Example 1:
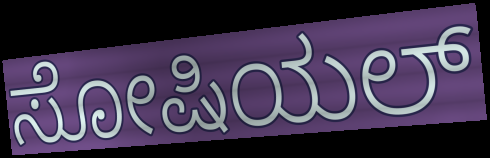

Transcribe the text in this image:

ಸೋಷಿಯಲ್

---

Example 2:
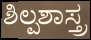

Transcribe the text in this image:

ಶಿಲ್ಪಶಾಸ್ತ್ರ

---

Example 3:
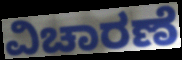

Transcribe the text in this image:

ವಿಚಾರಣೆ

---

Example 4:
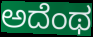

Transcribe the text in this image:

ಅದೆಂಥ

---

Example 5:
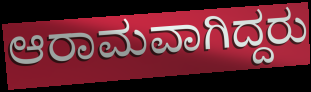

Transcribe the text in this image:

ಆರಾಮವಾಗಿದ್ದರು